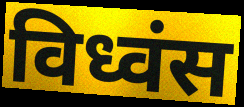
विध्वंस